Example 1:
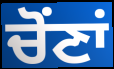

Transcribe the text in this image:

ਚੋਂਣਾਂ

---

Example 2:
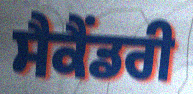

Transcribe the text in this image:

ਸੈਕੈਂਡਰੀ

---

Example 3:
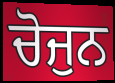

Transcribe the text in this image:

ਚੋਜੁਨ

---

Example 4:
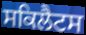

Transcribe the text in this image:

ਸਕਿਲੈਟਸ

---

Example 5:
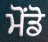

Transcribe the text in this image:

ਮੋਂਡੋ